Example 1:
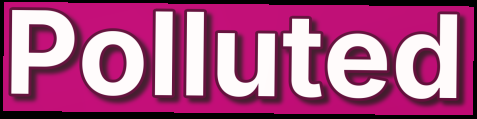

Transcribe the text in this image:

Polluted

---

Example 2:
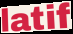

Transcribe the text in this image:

latif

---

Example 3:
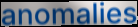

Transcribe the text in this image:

anomalies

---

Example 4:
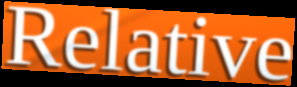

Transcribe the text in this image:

Relative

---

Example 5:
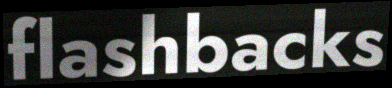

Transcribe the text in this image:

flashbacks